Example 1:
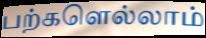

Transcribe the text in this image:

பற்களெல்லாம்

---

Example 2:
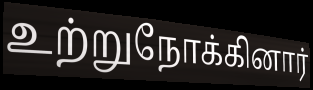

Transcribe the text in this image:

உற்றுநோக்கினார்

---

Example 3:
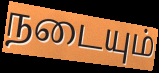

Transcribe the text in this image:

நடையும்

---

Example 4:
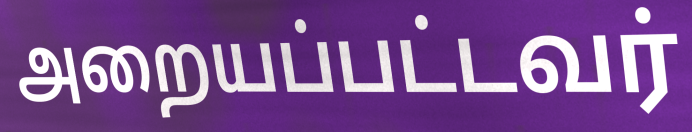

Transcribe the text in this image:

அறையப்பட்டவர்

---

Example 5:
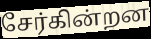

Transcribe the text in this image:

சேர்கின்றன